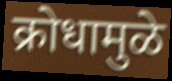
क्रोधामुळे